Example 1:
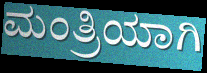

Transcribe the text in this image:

ಮಂತ್ರಿಯಾಗಿ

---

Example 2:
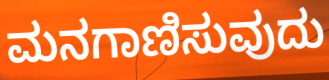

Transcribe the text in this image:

ಮನಗಾಣಿಸುವುದು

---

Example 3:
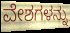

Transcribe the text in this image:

ವೇಶಗಳನ್ನು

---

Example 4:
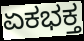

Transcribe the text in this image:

ಏಕಭಕ್ತ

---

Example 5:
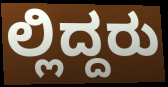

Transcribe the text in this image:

ಲ್ಲಿದ್ದರು